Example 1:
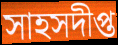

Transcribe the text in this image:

সাহসদীপ্ত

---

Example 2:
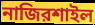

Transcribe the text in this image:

নাজিরশাইল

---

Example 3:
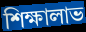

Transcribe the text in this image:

শিক্ষালাভ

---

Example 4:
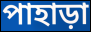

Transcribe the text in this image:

পাহাড়া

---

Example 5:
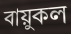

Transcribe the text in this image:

বায়ুকল